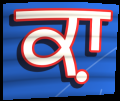
ਕ਼ਾ